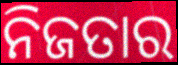
ନିଜତାର